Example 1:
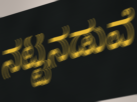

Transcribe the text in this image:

ನಟ್ಟನಡುವೆ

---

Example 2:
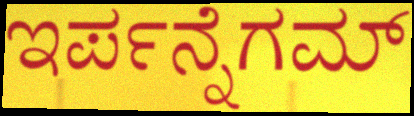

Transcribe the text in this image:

ಇರ್ಪನ್ನೆಗಮ್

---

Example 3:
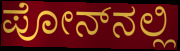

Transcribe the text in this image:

ಪೋನ್‍ನಲ್ಲಿ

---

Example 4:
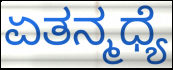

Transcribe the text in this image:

ಏತನ್ಮಧ್ಯೆ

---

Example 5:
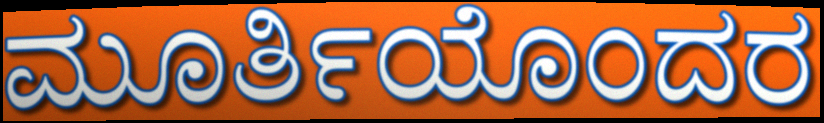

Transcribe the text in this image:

ಮೂರ್ತಿಯೊಂದರ